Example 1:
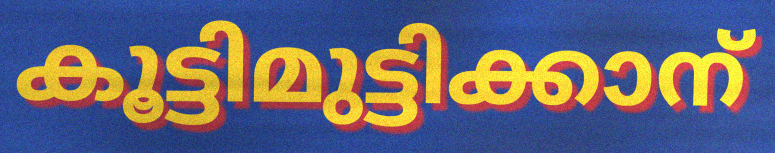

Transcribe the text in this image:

കൂട്ടിമുട്ടിക്കാന്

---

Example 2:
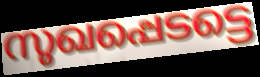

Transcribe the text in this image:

സുഖപ്പെടട്ടെ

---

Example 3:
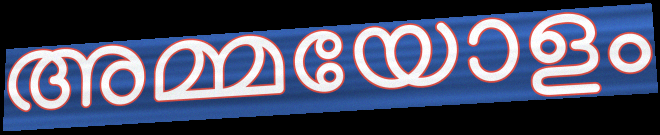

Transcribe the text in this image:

അമ്മയോളം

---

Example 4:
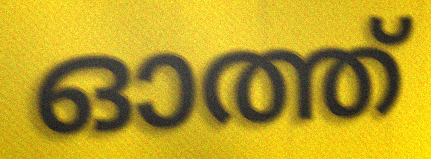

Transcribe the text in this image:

ഓത്ത്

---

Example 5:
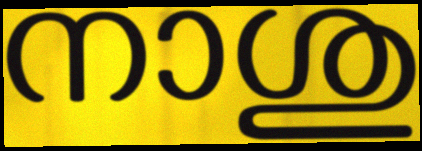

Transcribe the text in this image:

നാശു